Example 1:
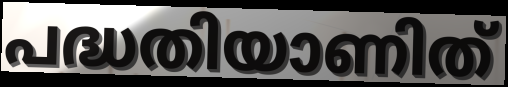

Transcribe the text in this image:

പദ്ധതിയാണിത്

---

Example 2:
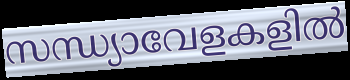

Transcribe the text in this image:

സന്ധ്യാവേളകളിൽ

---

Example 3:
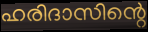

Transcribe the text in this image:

ഹരിദാസിന്റെ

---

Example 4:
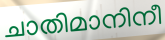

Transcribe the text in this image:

ചാതിമാനിനീ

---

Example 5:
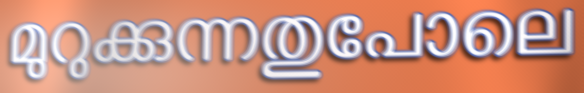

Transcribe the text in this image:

മുറുക്കുന്നതുപോലെ